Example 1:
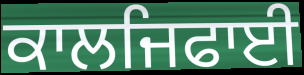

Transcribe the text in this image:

ਕਾਲਜਿਫਾਈ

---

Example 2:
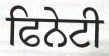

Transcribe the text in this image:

ਫਿਨੇਟੀ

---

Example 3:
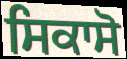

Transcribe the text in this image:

ਸਿਕਾਸੋ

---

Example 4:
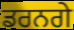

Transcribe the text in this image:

ਡਰਨਗੇ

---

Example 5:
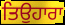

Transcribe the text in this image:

ਤਿਉਹਾਰਾ